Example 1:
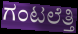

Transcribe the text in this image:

ಗಂಟಲೆತ್ತಿ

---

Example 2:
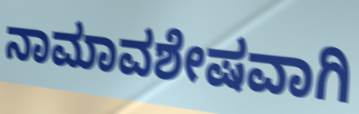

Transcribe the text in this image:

ನಾಮಾವಶೇಷವಾಗಿ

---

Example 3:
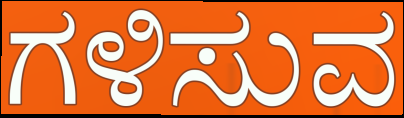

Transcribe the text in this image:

ಗಳಿಸುವ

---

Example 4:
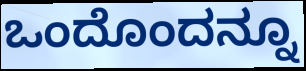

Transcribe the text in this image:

ಒಂದೊಂದನ್ನೂ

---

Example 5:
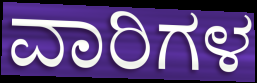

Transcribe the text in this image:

ವಾರಿಗಳ